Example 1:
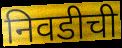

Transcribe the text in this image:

निवडीची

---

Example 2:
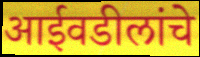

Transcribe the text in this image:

आईवडीलांचे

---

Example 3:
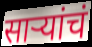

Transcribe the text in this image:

साऱ्यांचं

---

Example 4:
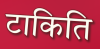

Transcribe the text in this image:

टाकिति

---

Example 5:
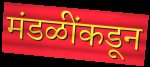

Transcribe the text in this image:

मंडळींकडून